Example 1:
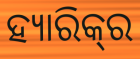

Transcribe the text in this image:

ହ୍ୟାରିକ୍‌ର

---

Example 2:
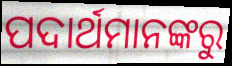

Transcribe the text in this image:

ପଦାର୍ଥମାନଙ୍କରୁ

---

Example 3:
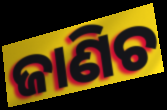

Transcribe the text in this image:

ଜାଣିଚ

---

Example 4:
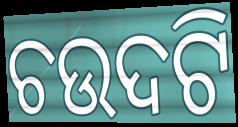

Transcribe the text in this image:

ଚଉଦଟି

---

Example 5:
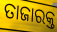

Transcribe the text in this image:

ତାଜାରକ୍ତ